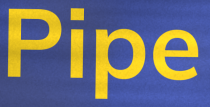
Pipe